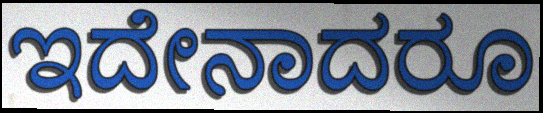
ಇದೇನಾದರೂ